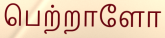
பெற்றாளோ